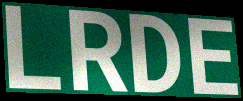
LRDE